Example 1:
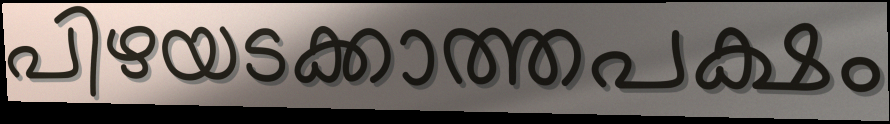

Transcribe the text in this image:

പിഴയടക്കാത്തപക്ഷം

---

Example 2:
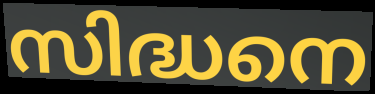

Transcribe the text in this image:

സിദ്ധനെ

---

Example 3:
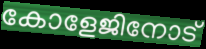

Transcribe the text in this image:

കോളേജിനോട്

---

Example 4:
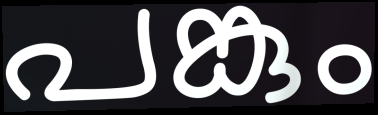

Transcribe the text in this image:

പങ്കും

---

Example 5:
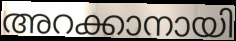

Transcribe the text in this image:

അറക്കാനായി